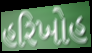
હરિખોહ